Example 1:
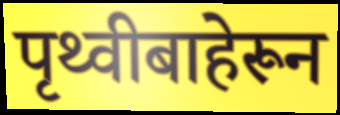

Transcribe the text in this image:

पृथ्वीबाहेरून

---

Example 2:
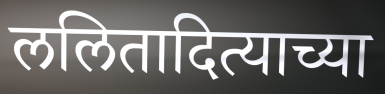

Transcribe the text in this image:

ललितादित्याच्या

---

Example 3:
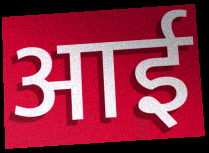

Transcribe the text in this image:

आई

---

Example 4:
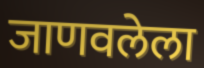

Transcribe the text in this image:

जाणवलेला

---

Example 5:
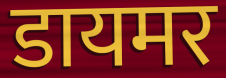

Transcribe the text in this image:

डायमर